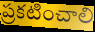
ప్రకటించాలి